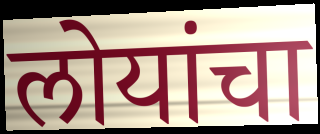
लोयांचा